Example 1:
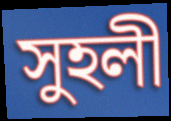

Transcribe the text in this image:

সুহলী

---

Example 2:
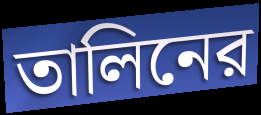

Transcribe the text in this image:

তালিনের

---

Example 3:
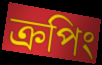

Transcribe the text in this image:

ক্রপিং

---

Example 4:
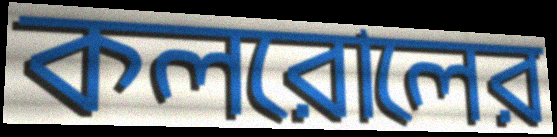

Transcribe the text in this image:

কলরোলের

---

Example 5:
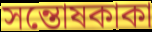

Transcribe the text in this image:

সন্তোষকাকা